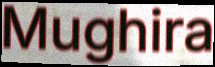
Mughira